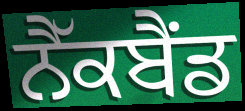
ਨੈੱਕਬੈਂਡ